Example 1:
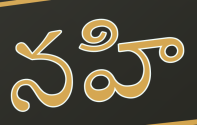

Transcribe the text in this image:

నహి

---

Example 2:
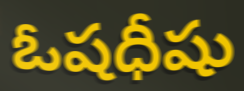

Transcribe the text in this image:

ఓషధీషు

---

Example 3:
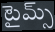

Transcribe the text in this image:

టైమ్స్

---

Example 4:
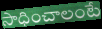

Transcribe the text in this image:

సాధించాలంటే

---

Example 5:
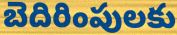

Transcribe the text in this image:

బెదిరింపులకు